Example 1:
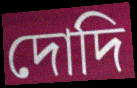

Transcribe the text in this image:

দোদি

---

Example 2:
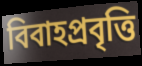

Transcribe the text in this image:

বিবাহপ্রবৃত্তি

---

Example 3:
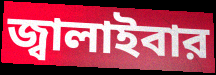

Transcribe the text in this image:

জ্বালাইবার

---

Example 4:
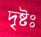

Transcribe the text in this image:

দৃষ্টঃ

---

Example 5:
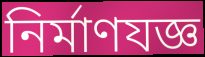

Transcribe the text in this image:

নির্মাণযজ্ঞ